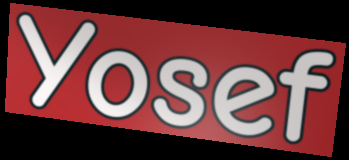
Yosef